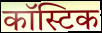
कॉस्टिक